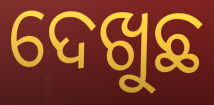
ଦେଖୁଛ